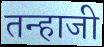
तन्हाजी